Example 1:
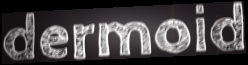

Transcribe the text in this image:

dermoid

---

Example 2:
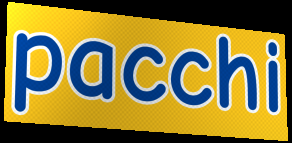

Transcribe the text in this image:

pacchi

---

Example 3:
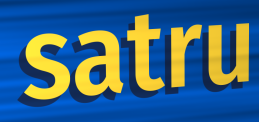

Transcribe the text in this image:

satru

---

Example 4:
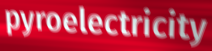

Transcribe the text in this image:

pyroelectricity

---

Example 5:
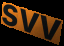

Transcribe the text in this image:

svv